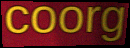
coorg